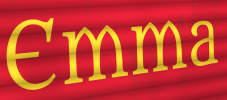
Emma